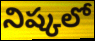
నిష్కలో